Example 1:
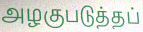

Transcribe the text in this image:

அழகுபடுத்தப்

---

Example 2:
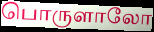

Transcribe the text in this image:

பொருளாலோ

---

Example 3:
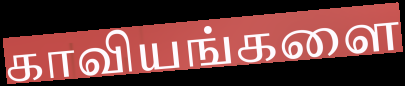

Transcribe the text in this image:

காவியங்களை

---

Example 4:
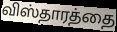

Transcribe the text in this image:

விஸ்தாரத்தை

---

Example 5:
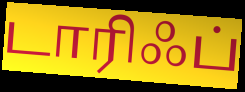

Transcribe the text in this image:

டாரிஃப்